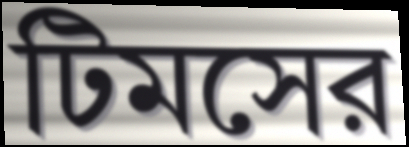
টিমসের